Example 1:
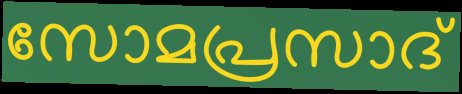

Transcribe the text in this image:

സോമപ്രസാദ്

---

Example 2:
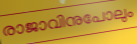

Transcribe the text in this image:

രാജാവിനുപോലും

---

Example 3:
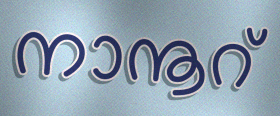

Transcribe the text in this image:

നാനൂറ്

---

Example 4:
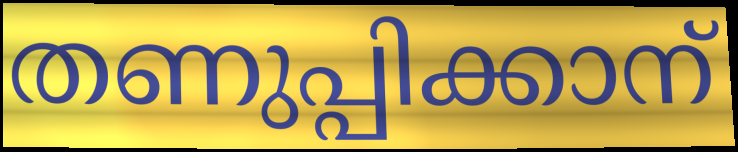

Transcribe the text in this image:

തണുപ്പിക്കാന്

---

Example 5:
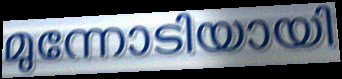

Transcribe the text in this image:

മുന്നോടിയായി